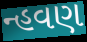
ન્હવણ